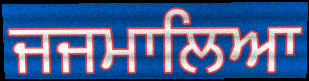
ਜਜਮਾਲਿਆ